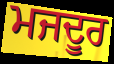
ਮਜਦੂਰ